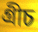
গ্ৰীচ